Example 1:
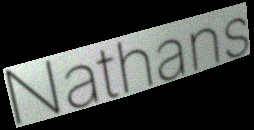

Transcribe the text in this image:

Nathans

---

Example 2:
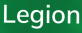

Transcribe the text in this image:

Legion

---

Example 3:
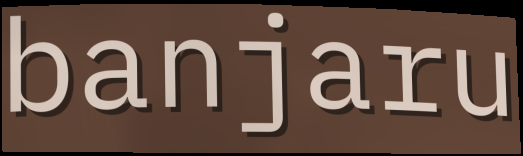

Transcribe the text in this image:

banjaru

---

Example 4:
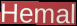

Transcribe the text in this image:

Hemal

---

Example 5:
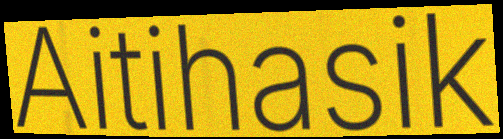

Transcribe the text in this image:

Aitihasik